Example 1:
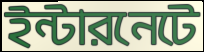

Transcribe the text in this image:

ইন্টারনেটে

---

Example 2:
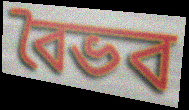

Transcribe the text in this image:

বৈভব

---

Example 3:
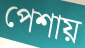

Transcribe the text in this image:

পেশায়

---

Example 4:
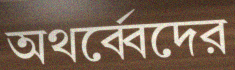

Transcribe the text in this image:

অথর্ব্বেদের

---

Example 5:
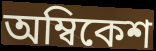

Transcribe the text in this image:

অম্বিকেশ